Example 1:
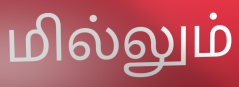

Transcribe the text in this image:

மில்லும்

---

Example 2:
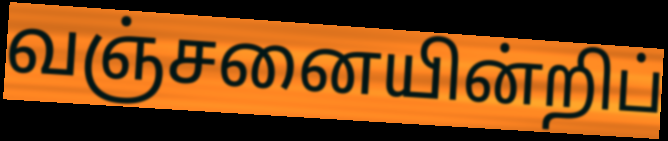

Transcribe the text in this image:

வஞ்சனையின்றிப்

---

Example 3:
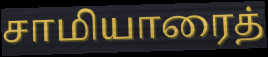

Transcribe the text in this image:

சாமியாரைத்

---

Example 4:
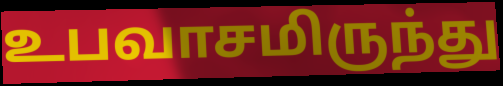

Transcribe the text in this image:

உபவாசமிருந்து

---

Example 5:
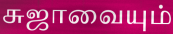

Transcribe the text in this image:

சுஜாவையும்